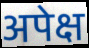
अपेक्ष